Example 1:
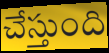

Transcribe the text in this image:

చేస్తుంది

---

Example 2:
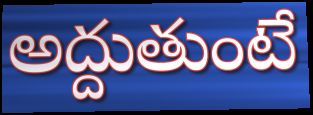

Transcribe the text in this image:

అద్దుతుంటే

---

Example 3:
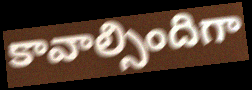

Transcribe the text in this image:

కావాల్సిందిగా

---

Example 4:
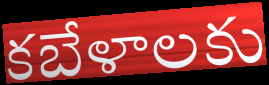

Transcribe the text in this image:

కబేళాలకు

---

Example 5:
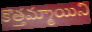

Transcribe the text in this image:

కొత్తమ్మాయిని